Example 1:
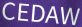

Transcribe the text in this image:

CEDAW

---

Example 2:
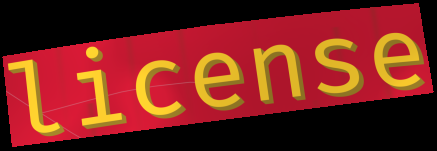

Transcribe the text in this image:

license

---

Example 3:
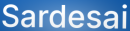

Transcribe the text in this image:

Sardesai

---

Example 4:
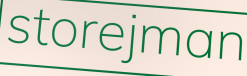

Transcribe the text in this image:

storejman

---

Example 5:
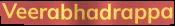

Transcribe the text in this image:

Veerabhadrappa